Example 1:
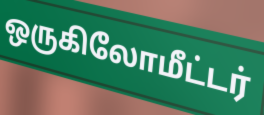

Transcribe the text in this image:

ஒருகிலோமீட்டர்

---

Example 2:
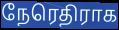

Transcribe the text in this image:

நேரெதிராக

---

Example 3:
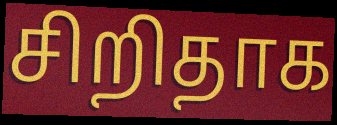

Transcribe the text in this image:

சிறிதாக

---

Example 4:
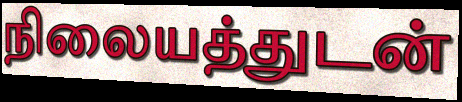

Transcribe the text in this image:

நிலையத்துடன்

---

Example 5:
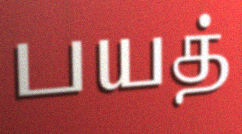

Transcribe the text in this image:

பயத்